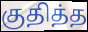
குதித்த